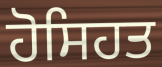
ਹੋਸਿਹਤ